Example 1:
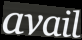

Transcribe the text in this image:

avail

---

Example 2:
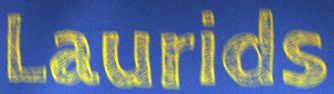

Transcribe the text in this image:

Laurids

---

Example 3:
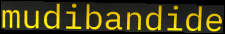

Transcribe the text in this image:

mudibandide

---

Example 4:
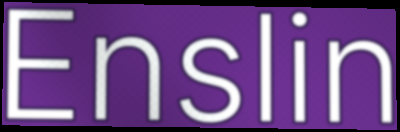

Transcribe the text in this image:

Enslin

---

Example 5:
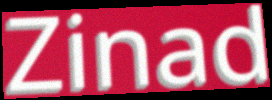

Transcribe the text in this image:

Zinad